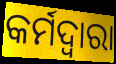
କର୍ମଦ୍ୱାରା